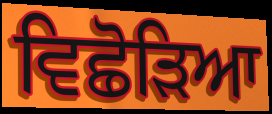
ਵਿਛੋੜਿਆ